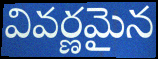
వివర్ణమైన